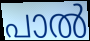
പാൽ